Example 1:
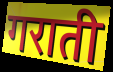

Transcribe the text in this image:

गराती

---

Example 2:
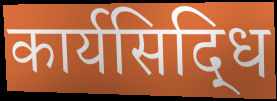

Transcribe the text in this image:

कार्यसिद्धि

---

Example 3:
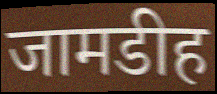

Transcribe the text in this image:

जामडीह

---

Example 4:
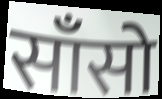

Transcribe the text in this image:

साँसो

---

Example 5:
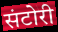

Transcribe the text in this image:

संटोरी